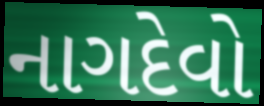
નાગદેવો